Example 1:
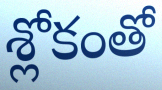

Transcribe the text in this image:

శ్లోకంతో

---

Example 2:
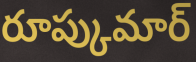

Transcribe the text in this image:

రూప్కుమార్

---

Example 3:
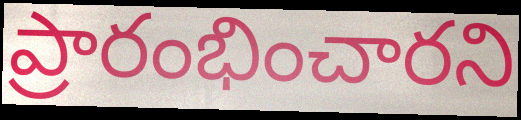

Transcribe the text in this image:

ప్రారంభించారని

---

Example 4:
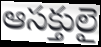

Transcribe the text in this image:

ఆసక్తులై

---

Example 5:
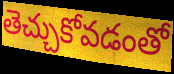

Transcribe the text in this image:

తెచ్చుకోవడంతో